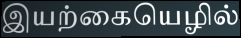
இயற்கையெழில்